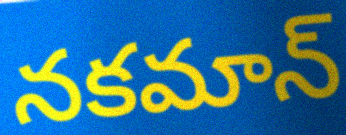
నకమాన్